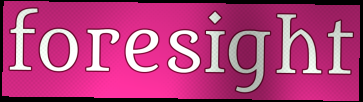
foresight